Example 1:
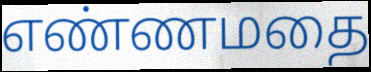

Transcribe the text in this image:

எண்ணமதை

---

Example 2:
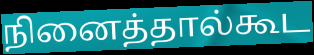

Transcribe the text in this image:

நினைத்தால்கூட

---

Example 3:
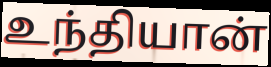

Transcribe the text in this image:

உந்தியான்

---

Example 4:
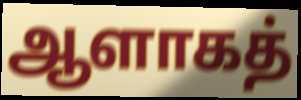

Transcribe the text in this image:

ஆளாகத்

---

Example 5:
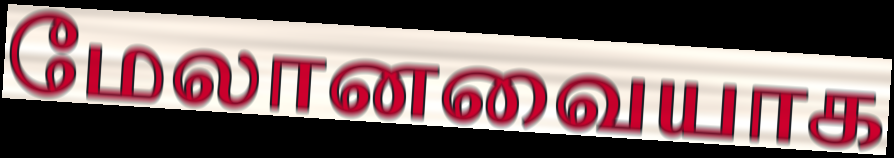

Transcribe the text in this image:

மேலானவையாக